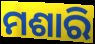
ମଶାରି